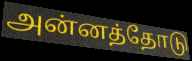
அன்னத்தோடு